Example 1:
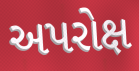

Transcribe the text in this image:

અપરોક્ષ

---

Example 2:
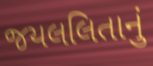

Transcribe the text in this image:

જયલલિતાનું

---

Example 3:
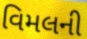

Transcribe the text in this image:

વિમલની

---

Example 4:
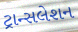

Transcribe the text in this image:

ટ્રાન્સલેશન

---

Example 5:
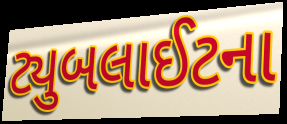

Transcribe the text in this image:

ટ્યુબલાઈટના